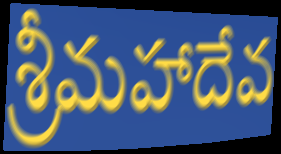
శ్రీమహాదేవ